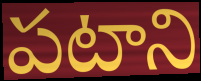
పటాని